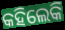
କହିଲେକି